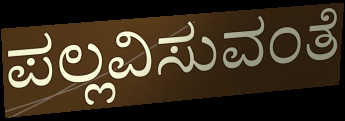
ಪಲ್ಲವಿಸುವಂತೆ